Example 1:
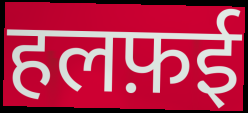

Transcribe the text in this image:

हलफ़ई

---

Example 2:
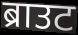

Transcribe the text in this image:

ब्राउट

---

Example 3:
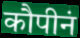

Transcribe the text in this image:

कौपीनं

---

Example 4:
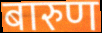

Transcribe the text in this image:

बारुण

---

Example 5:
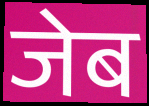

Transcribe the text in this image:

जेब